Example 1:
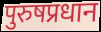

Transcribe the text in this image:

पुरुषप्रधान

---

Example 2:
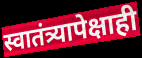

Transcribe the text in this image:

स्वातंत्र्यापेक्षाही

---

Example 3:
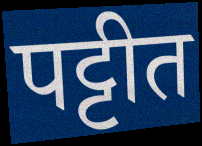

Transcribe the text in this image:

पट्टीत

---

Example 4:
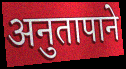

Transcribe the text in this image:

अनुतापाने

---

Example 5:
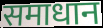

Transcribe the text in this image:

समाधान